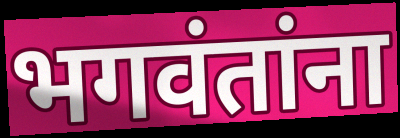
भगवंतांना